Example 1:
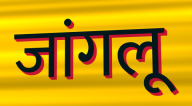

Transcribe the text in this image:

जांगलू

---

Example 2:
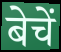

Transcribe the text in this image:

बेचें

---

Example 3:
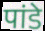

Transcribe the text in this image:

पांडे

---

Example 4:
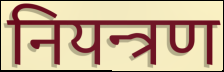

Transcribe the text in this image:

नियन्त्रण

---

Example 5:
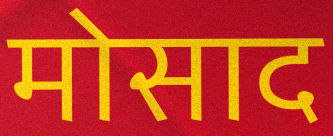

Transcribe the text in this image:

मोसाद